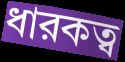
ধারকত্ব